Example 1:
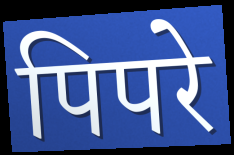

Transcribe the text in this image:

पिपरे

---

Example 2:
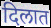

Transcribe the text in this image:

दिलात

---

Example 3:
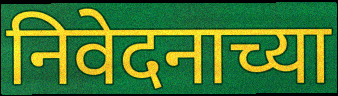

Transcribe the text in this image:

निवेदनाच्या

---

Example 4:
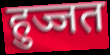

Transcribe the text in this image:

हुज्जत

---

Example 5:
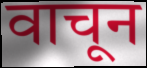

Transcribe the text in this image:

वाचून